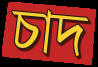
চাদ